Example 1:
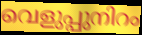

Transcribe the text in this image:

വെളുപ്പുനിറം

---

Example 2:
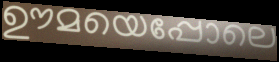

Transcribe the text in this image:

ഊമയെപ്പോലെ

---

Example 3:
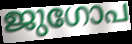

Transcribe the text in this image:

ജുഗോപ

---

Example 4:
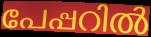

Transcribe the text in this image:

പേപ്പറിൽ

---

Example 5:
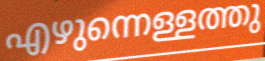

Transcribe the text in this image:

എഴുന്നെള്ളത്തു